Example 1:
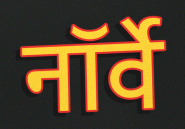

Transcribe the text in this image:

नॉर्वे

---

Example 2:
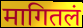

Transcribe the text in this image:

मागितलं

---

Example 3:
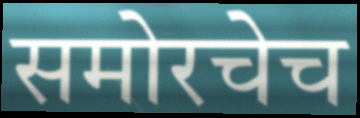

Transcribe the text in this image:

समोरचेच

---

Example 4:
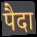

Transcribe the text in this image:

पैदा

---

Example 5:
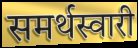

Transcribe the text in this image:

समर्थस्वारी